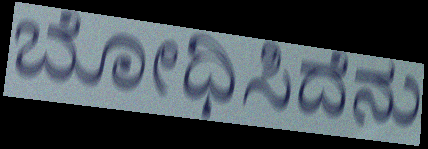
ಬೋಧಿಸಿದೆನು